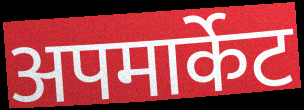
अपमार्केट